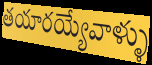
తయారయ్యేవాళ్ళు